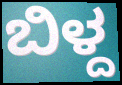
ಬಿಳ್ದ